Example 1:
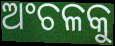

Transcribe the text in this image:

ଅଂଚଳକୁ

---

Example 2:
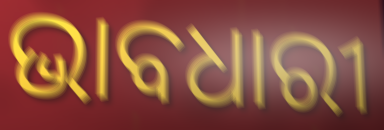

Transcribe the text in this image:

ଭାବଧାରୀ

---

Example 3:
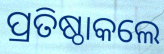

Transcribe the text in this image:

ପ୍ରତିଷ୍ଠାକଲେ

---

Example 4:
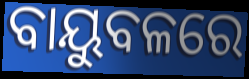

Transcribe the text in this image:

ବାୟୁବଳରେ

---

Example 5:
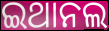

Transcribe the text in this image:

ଇଥାନଲ